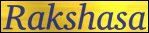
Rakshasa